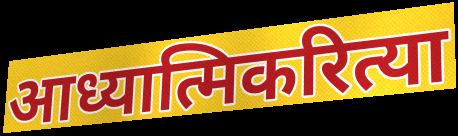
आध्यात्मिकरित्या